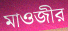
মাওজীর